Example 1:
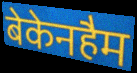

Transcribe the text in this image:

बेकेनहैम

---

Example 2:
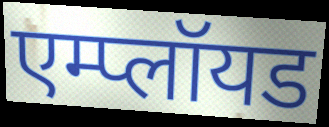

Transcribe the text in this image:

एम्प्लॉयड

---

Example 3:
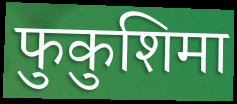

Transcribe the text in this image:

फुकुशिमा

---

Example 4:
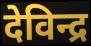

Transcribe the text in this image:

देविन्द्र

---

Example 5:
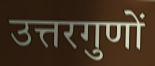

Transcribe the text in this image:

उत्तरगुणों